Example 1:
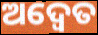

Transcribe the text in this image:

ଅଦ୍ଵେତ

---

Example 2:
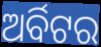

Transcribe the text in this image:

ଅର୍ବିଟର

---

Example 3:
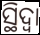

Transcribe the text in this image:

ସ୍ଥିଦ୍ଵା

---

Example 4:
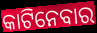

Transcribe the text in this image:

କାଟିନେବାର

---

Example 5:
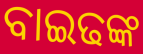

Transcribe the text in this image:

ବାଇଢଙ୍କ